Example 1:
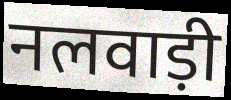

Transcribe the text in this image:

नलवाड़ी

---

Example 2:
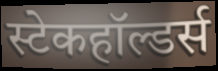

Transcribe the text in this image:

स्टेकहॉल्डर्स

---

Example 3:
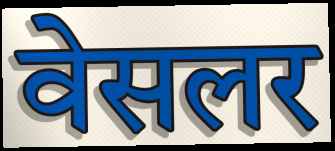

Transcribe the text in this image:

वेसलर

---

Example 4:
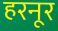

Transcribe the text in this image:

हरनूर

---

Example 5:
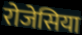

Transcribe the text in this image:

रोजेसिया